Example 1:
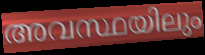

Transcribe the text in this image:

അവസ്ഥയിലും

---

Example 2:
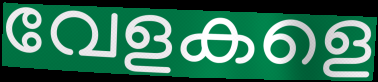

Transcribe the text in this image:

വേളകളെ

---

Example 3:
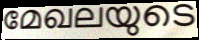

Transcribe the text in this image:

മേഖലയുടെ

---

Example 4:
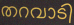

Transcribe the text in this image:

തറവാടി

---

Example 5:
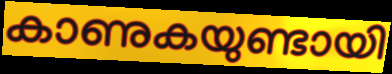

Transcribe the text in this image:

കാണുകയുണ്ടായി